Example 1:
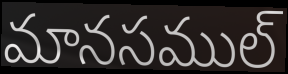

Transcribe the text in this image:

మానసముల్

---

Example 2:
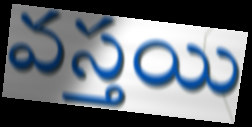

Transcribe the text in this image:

వస్తయి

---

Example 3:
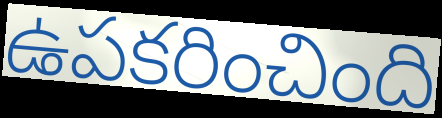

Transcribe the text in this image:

ఉపకరించింది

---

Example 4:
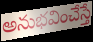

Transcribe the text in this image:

అనుభవించేస్తే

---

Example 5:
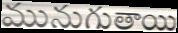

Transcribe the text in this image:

మునుగుతాయి